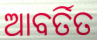
ଆବର୍ତିତ